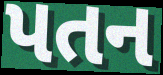
પતન